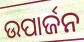
ଉପାର୍ଜନ